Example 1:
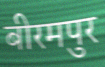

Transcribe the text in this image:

बीरमपुर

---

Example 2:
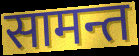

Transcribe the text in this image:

सामन्त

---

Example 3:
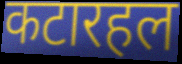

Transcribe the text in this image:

कटारहल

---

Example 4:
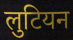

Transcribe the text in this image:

लुटियन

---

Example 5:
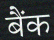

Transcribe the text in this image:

बैंक